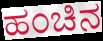
ಹಂಚಿನ